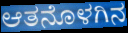
ಆತನೊಳಗಿನ